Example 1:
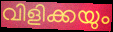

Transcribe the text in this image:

വിളിക്കയും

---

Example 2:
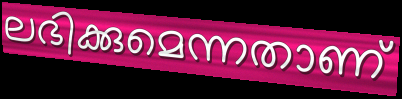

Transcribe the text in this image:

ലഭിക്കുമെന്നതാണ്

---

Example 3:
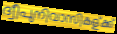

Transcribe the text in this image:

ദ്വീപുനിവാസികള്ക്ക്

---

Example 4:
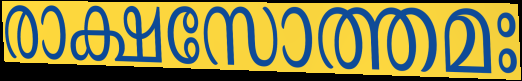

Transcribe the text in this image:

രാക്ഷസോത്തമഃ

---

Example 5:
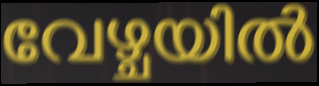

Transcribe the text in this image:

വേഴ്ചയിൽ